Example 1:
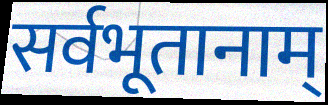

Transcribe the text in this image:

सर्वभूतानाम्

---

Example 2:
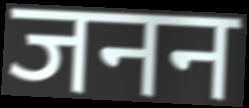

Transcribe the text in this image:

जनन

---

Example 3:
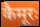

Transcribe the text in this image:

कैमूरः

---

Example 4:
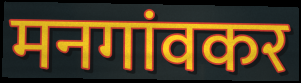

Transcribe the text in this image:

मनगांवकर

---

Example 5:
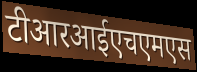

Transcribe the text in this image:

टीआरआईएचएमएस